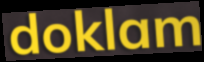
doklam